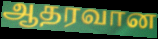
ஆதரவான